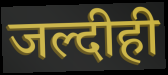
जल्दीही